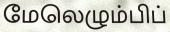
மேலெழும்பிப்